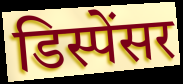
डिस्पेंसर